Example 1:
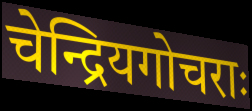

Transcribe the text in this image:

चेन्द्रियगोचराः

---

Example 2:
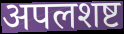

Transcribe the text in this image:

अपलशष्ट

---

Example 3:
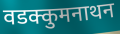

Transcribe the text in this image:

वडक्कुमनाथन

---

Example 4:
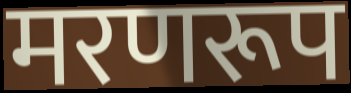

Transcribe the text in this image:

मरणरूप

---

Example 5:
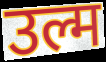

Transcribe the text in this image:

उल्म